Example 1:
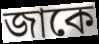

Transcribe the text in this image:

জাকে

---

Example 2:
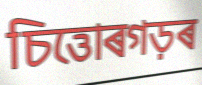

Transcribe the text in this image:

চিত্তোৰগড়ৰ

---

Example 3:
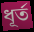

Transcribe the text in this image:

ধূৰ্ত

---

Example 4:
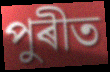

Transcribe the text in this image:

পুৰীত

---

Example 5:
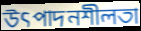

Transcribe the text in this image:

উৎপাদনশীলতা